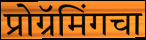
प्रोग्रॅमिंगचा